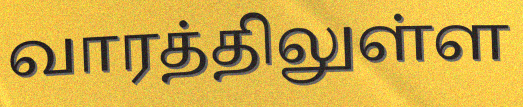
வாரத்திலுள்ள